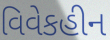
વિવેકહીન